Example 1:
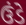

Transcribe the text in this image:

ઉંડે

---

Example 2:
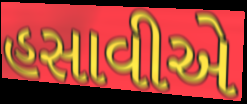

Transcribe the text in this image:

હસાવીએ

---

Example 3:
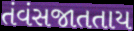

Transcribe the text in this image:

તંવંસજાતતાય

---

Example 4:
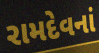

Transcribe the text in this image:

રામદેવનાં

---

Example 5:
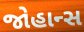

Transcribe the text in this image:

જોહાન્સ